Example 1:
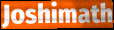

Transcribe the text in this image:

Joshimath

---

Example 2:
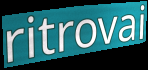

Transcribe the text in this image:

ritrovai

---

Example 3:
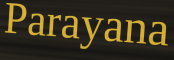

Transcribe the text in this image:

Parayana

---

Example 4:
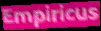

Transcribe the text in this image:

Empiricus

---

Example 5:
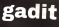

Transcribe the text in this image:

gadit